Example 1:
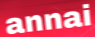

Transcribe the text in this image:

annai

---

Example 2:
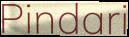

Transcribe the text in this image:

Pindari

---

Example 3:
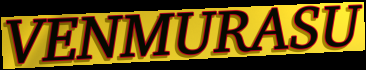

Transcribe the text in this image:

VENMURASU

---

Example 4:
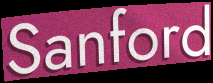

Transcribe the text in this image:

Sanford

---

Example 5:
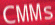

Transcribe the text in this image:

CMMs